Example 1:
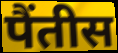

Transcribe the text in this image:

पैंतीस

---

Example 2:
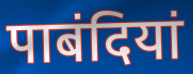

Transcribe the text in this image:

पाबंदियां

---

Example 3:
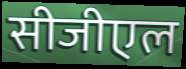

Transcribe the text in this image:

सीजीएल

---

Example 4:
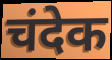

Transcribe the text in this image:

चंदेक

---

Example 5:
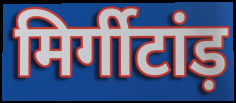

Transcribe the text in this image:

मिर्गीटांड़